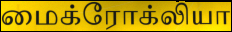
மைக்ரோக்லியா